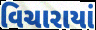
વિચારાયાં